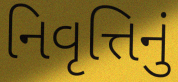
નિવૃત્તિનું